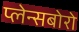
प्लेन्सबोरो